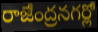
రాజేంద్రనగర్లో